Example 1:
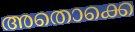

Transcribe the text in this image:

അതൊക്കെ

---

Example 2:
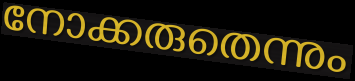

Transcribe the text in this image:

നോക്കരുതെന്നും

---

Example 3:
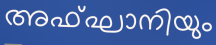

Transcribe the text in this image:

അഫ്ഘാനിയും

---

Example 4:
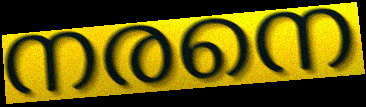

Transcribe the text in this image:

നരനെ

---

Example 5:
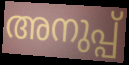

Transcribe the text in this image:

അനുപ്പ്